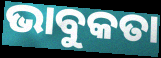
ଭାବୁକତା